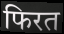
फिरत